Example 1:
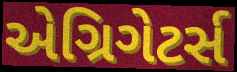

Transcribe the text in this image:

એગ્રિગેટર્સ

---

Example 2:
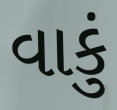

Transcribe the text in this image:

વાકું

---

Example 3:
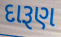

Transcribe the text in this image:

દારૂણ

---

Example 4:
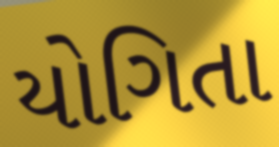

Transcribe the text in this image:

યોગિતા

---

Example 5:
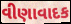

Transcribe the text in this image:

વીણાવાદક